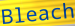
Bleach